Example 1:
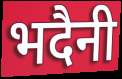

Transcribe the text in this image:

भदैनी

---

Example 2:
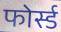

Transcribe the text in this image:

फोर्स्ड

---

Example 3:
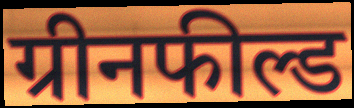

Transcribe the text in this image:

ग्रीनफील्ड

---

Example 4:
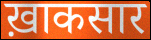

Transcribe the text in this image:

ख़ाकसार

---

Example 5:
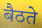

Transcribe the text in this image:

बैठते